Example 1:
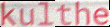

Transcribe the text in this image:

kulthe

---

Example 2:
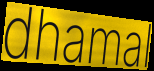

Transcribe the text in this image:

dhamal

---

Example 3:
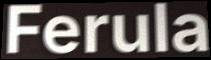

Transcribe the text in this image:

Ferula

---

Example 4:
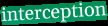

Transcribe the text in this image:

interception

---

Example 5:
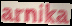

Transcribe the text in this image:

arnika